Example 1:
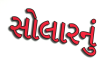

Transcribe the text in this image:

સોલારનું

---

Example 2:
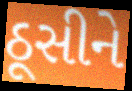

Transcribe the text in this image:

ઠૂસીને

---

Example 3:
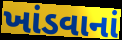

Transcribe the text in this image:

ખાંડવાનાં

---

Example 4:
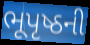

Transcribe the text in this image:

ભૂપૃષ્ઠની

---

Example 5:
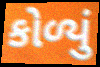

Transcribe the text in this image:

કોળ્યું